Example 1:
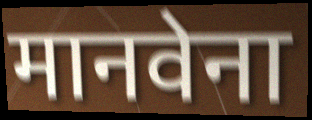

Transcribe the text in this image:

मानवेना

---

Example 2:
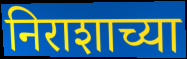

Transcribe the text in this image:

निराशाच्या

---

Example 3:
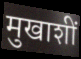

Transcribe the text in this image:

मुखाशीं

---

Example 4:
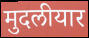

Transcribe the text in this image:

मुदलीयार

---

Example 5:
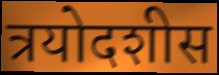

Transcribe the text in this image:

त्रयोदशीस